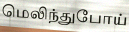
மெலிந்துபோய்